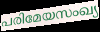
പരിമേയസംഖ്യ